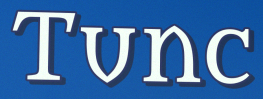
Tunc